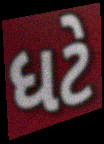
ધટે